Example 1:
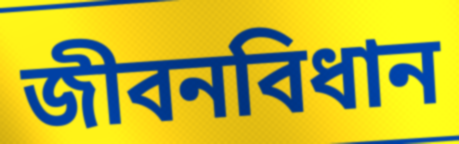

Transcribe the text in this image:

জীবনবিধান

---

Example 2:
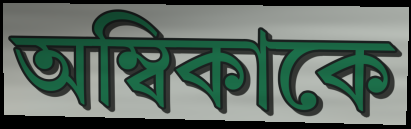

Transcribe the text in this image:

অম্বিকাকে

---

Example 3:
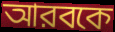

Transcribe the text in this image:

আরবকে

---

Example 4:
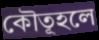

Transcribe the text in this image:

কৌতূহলে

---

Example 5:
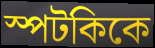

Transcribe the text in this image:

স্পটকিকে